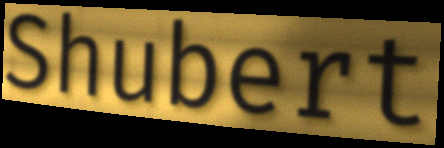
Shubert